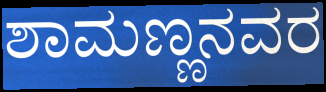
ಶಾಮಣ್ಣನವರ